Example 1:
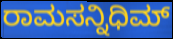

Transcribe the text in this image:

ರಾಮಸನ್ನಿಧಿಮ್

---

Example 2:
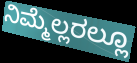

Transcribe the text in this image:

ನಿಮ್ಮೆಲ್ಲರಲ್ಲೂ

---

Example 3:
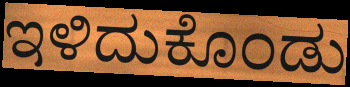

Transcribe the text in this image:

ಇಳಿದುಕೊಂಡು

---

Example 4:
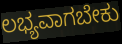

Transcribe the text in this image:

ಲಭ್ಯವಾಗಬೇಕು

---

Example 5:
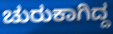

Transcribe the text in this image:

ಚುರುಕಾಗಿದ್ದ